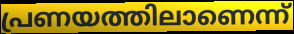
പ്രണയത്തിലാണെന്ന്